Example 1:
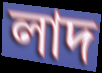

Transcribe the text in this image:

লাদ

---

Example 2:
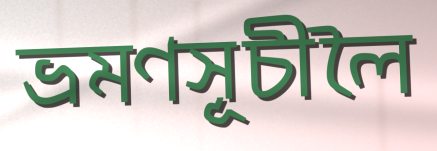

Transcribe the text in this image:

ভ্ৰমণসূচীলৈ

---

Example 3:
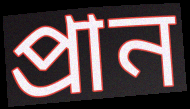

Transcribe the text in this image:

প্ৰান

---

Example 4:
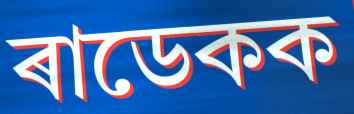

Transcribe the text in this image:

ৰাডেকক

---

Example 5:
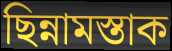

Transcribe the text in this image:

ছিন্নামস্তাক